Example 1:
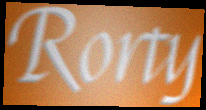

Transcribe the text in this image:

Rorty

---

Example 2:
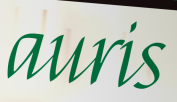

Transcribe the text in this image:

auris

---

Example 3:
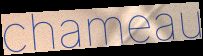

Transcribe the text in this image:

chameau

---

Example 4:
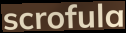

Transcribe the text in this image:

scrofula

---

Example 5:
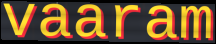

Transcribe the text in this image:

vaaram